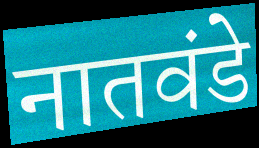
नातवंडे